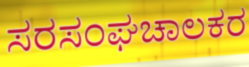
ಸರಸಂಘಚಾಲಕರ